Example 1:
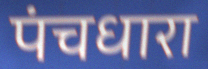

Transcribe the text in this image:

पंचधारा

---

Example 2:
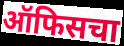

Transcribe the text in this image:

ऑफिसचा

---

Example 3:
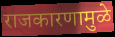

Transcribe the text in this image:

राजकारणामुळे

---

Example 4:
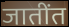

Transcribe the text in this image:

जातींत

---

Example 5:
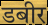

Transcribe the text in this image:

डबीर